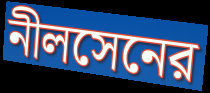
নীলসেনের